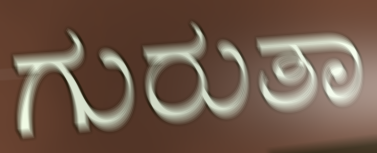
ಗುರುತಾ